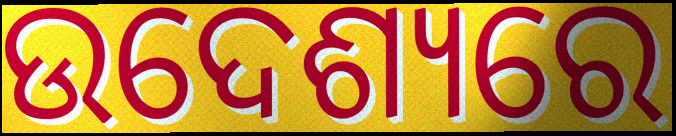
ଉଦେଶ୍ୟରେ